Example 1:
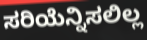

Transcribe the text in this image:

ಸರಿಯೆನ್ನಿಸಲಿಲ್ಲ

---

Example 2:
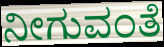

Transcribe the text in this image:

ನೀಗುವಂತೆ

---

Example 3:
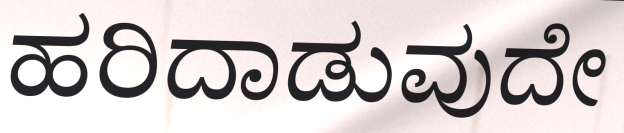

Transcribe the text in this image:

ಹರಿದಾಡುವುದೇ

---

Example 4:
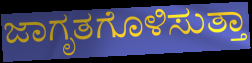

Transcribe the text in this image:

ಜಾಗೃತಗೊಳಿಸುತ್ತಾ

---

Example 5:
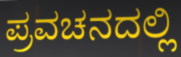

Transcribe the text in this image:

ಪ್ರವಚನದಲ್ಲಿ